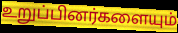
உறுப்பினர்களையும்